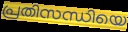
പ്രതിസന്ധിയെ